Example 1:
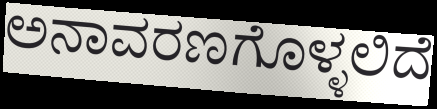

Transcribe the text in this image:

ಅನಾವರಣಗೊಳ್ಳಲಿದೆ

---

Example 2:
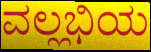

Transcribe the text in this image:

ವಲ್ಲಭಿಯ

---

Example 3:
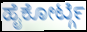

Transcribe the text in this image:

ಹೈಕೋರ್ಟ್ಗೆ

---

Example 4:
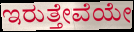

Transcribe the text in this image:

ಇರುತ್ತೇವೆಯೇ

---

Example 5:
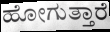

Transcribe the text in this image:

ಹೋಗುತ್ತಾರೆ